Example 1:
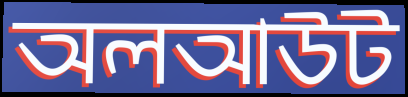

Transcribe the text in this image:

অলআউট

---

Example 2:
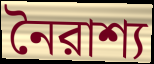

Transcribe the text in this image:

নৈরাশ্য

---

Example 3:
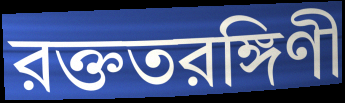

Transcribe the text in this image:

রক্ততরঙ্গিণী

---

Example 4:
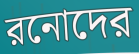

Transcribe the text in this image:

রনোদের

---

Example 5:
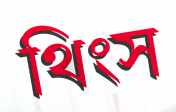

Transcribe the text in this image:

থিংস